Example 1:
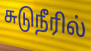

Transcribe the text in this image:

சுடுநீரில்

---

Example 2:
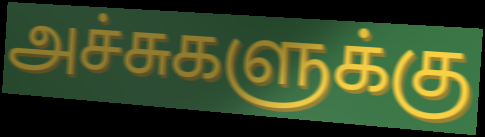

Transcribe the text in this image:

அச்சுகளுக்கு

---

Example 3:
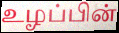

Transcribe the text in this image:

உழப்பின்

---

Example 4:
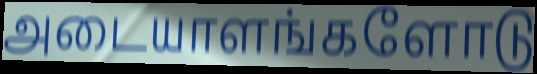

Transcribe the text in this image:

அடையாளங்களோடு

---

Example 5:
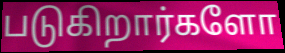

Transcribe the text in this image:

படுகிறார்களோ